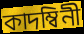
কাদম্বিনী